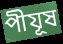
পীযূষ